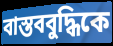
বাস্তববুদ্ধিকে